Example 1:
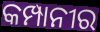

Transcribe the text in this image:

କମ୍ପାନୀର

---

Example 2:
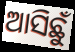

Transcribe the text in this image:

ଆସିଛୁଁ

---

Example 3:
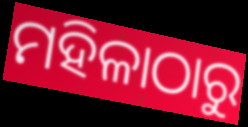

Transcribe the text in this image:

ମହିଳାଠାରୁ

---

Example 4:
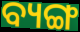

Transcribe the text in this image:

ବ୍ୟଙ୍ଗ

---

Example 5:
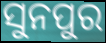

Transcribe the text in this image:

ସୁନପୁର